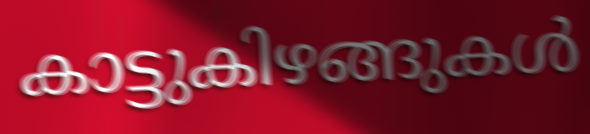
കാട്ടുകിഴങ്ങുകൾ